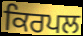
ਕਿਰਪਲ